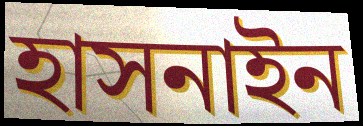
হাসনাইন